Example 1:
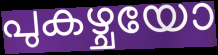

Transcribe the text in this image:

പുകഴ്ചയോ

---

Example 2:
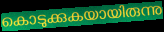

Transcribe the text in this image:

കൊടുക്കുകയായിരുന്നു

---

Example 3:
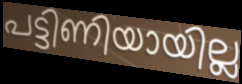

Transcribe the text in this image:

പട്ടിണിയായില്ല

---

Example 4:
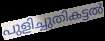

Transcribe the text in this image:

പുളിച്ചുതികട്ടൽ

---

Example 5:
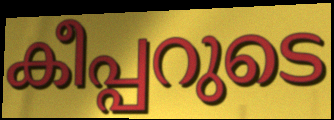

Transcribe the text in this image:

കീപ്പറുടെ